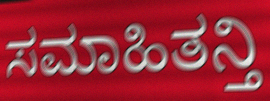
ಸಮಾಹಿತನ್ತಿ